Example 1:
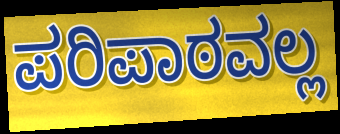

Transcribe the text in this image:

ಪರಿಪಾಠವಲ್ಲ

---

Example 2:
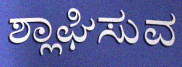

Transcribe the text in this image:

ಶ್ಲಾಘಿಸುವ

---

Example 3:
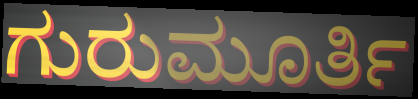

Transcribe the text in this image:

ಗುರುಮೂರ್ತಿ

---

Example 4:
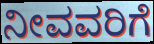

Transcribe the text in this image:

ನೀವವರಿಗೆ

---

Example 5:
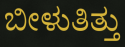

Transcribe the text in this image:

ಬೀಳುತಿತ್ತು